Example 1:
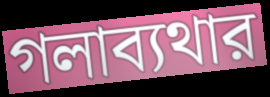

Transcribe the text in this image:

গলাব্যথার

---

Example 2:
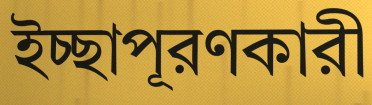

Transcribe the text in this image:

ইচ্ছাপূরণকারী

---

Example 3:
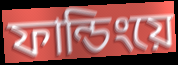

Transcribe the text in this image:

ফান্ডিংয়ে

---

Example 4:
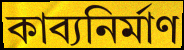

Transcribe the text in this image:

কাব্যনির্মাণ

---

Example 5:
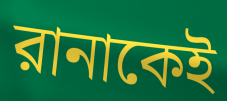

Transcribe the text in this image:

রানাকেই